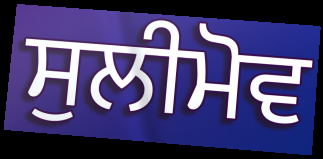
ਸੁਲੀਮੋਵ